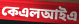
কেএলআইএ